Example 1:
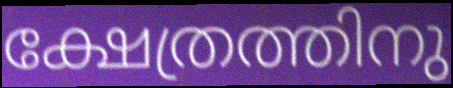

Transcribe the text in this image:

ക്ഷേത്രത്തിനു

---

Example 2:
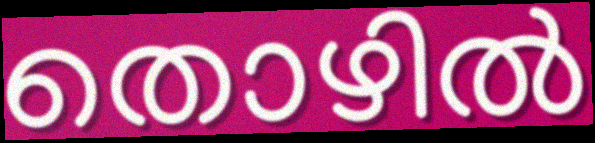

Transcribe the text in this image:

തൊഴിൽ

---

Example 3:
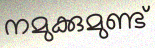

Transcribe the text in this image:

നമുക്കുമുണ്ട്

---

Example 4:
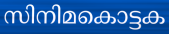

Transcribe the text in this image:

സിനിമകൊട്ടക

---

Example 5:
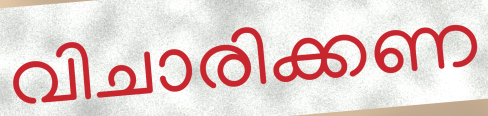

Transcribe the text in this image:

വിചാരിക്കണ